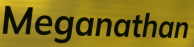
Meganathan